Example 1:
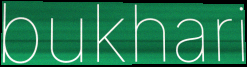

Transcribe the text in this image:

bukhari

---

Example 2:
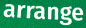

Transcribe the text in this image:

arrange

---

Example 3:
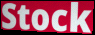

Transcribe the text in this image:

Stock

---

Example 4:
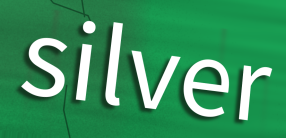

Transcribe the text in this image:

silver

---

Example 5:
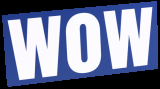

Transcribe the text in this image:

wow